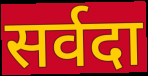
सर्वदा